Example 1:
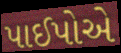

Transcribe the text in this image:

પાઈપોએ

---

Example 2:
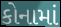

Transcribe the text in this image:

કોનામાં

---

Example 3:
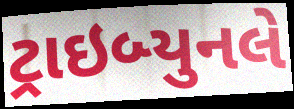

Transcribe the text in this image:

ટ્રાઇબ્યુનલે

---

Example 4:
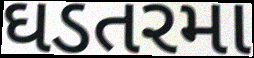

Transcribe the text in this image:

ઘડતરમા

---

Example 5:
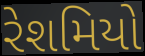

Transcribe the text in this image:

રેશમિયો